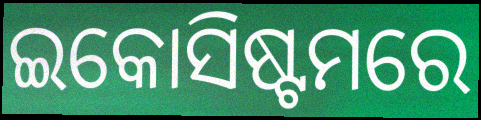
ଇକୋସିଷ୍ଟମରେ